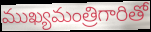
ముఖ్యమంత్రిగారితో